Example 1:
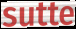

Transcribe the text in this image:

sutte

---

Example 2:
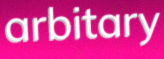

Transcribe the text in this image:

arbitary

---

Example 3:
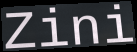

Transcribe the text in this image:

Zini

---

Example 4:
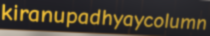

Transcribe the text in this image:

kiranupadhyaycolumn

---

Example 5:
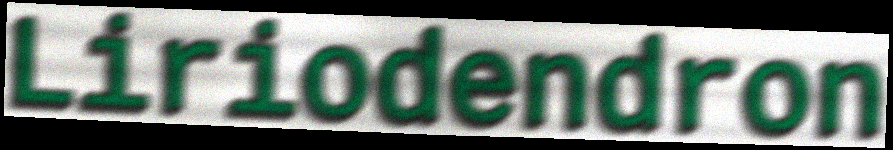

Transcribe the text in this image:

Liriodendron